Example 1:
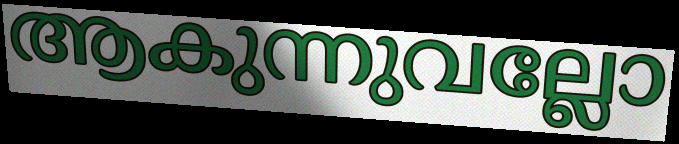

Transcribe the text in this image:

ആകുന്നുവല്ലോ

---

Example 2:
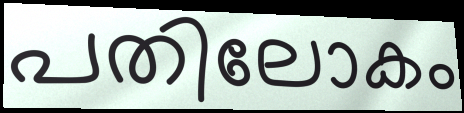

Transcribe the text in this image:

പതിലോകം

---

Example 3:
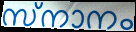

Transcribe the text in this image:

സ്‌നാനം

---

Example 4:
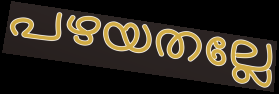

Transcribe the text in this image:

പഴയതല്ലേ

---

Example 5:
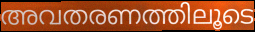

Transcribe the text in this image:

അവതരണത്തിലൂടെ